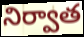
నిర్వాత